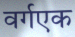
वर्गएक